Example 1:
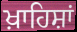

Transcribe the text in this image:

ਖ਼ਾਹਿਸ਼ਾਂ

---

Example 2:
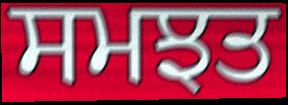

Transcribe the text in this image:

ਸਮਝਤ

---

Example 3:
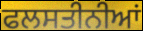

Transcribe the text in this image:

ਫਲਸਤੀਨੀਆਂ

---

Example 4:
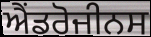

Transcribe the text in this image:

ਐਂਡਰੋਜੀਨਸ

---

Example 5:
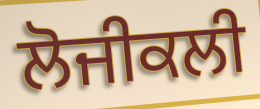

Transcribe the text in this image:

ਲੋਜੀਕਲੀ